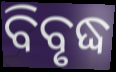
ବିବୃଦ୍ଧ